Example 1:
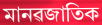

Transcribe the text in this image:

মানৱজাতিক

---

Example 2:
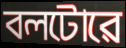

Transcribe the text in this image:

বলটোৱে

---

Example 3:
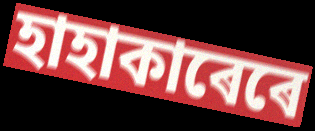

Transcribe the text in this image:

হাহাকাৰেৰে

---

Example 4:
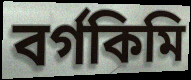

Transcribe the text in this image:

বৰ্গকিমি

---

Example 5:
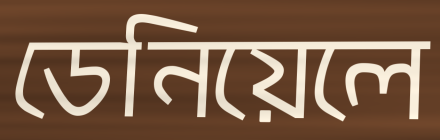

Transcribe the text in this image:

ডেনিয়েলে